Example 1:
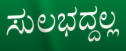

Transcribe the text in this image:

ಸುಲಭದ್ದಲ್ಲ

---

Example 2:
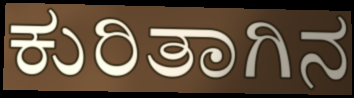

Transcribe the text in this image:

ಕುರಿತಾಗಿನ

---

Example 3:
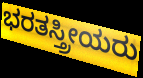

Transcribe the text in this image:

ಭರತಸ್ತ್ರೀಯರು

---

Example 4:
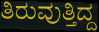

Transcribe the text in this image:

ತಿರುವುತ್ತಿದ್ದ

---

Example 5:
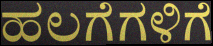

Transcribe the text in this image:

ಹಲಗೆಗಳಿಗೆ